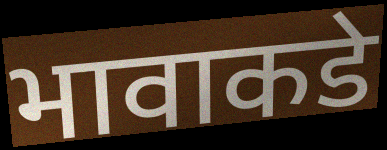
भावाकडे